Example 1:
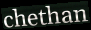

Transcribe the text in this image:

chethan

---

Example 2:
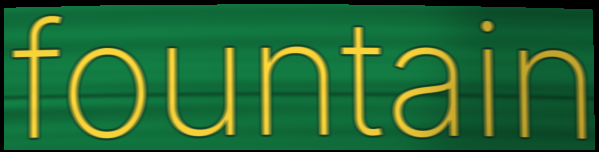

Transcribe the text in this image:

fountain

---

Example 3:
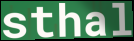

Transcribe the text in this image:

sthal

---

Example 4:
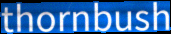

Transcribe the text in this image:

thornbush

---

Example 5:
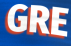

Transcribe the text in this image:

GRE